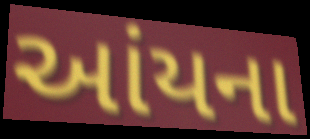
આંયના